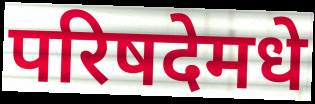
परिषदेमधे